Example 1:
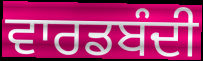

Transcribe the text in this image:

ਵਾਰਡਬੰਦੀ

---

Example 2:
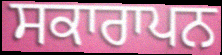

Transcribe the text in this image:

ਸਕਾਰਾਪਨ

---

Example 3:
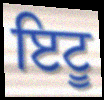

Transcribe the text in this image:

ਇਟੂ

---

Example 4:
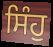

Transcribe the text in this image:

ਸਿੰਹੁ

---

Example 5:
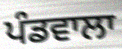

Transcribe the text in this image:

ਪੰਡਵਾਲਾ